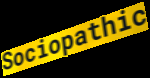
Sociopathic